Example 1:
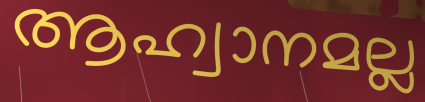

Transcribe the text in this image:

ആഹ്വാനമല്ല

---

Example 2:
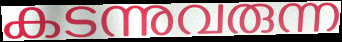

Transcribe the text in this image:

കടന്നുവരുന്ന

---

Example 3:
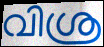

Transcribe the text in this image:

വിശ്ര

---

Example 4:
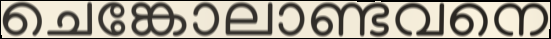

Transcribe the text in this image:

ചെങ്കോലാണ്ടവനെ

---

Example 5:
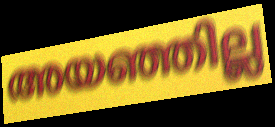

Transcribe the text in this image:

അയഞ്ഞില്ല